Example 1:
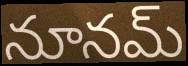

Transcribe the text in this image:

నూనమ్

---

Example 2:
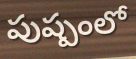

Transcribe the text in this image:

పుష్పంలో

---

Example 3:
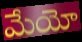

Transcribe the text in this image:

మేయో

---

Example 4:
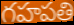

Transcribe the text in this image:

గహపతి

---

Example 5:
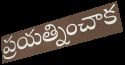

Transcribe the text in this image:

ప్రయత్నించాక